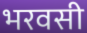
भरवसी